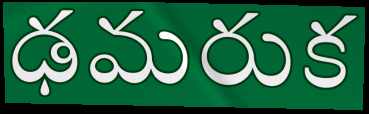
ఢమరుక